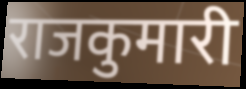
राजकुमारी